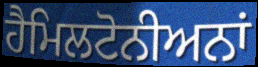
ਹੈਮਿਲਟੋਨੀਅਨਾਂ